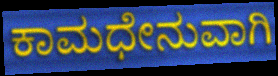
ಕಾಮಧೇನುವಾಗಿ